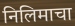
निलिमाचा